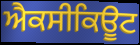
ਐਕਸੀਕਿਊਟ